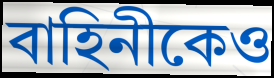
বাহিনীকেও